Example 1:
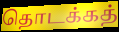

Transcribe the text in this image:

தொடக்கத்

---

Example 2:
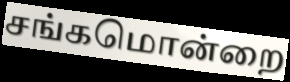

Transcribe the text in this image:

சங்கமொன்றை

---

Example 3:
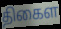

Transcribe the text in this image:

திகைள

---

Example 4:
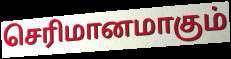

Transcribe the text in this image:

செரிமானமாகும்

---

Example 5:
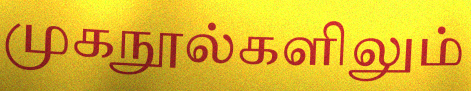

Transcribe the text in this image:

முகநூல்களிலும்